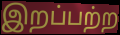
இறப்பற்ற